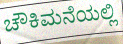
ಚೌಕಿಮನೆಯಲ್ಲಿ